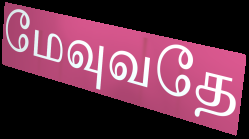
மேவுவதே